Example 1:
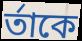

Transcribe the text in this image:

র্তাকে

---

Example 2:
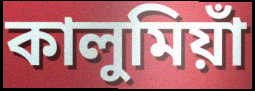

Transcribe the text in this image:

কালুমিয়াঁ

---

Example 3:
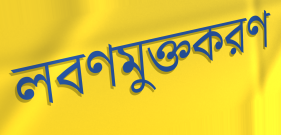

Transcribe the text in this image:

লবণমুক্তকরণ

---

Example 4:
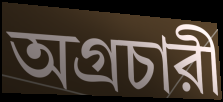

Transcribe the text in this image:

অগ্রচারী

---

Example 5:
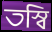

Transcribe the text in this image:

তস্বি